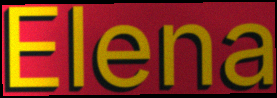
Elena